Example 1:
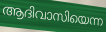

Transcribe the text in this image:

ആദിവാസിയെന്ന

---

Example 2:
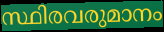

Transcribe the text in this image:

സ്ഥിരവരുമാനം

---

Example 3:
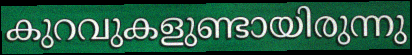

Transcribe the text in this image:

കുറവുകളുണ്ടായിരുന്നു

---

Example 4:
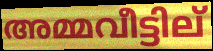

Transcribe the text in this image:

അമ്മവീട്ടില്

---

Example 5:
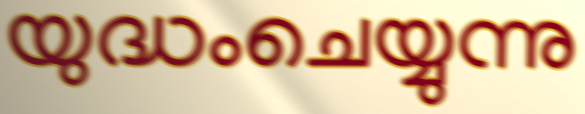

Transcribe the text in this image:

യുദ്ധംചെയ്യുന്നു